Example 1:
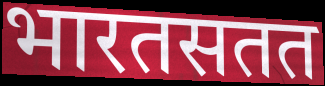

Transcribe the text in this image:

भारतसतत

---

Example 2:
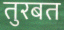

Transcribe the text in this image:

तुरबत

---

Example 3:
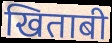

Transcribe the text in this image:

खिताबी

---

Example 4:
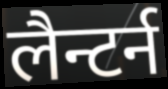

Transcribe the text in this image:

लैन्टर्न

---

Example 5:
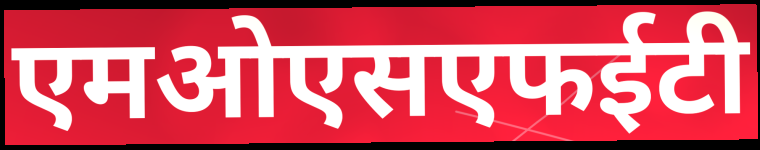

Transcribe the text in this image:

एमओएसएफईटी